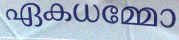
ഏകധമ്മോ